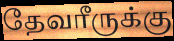
தேவரீருக்கு